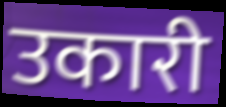
उकारी